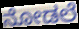
ನೋಡಲೆ